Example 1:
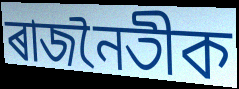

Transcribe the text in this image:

ৰাজনৈতীক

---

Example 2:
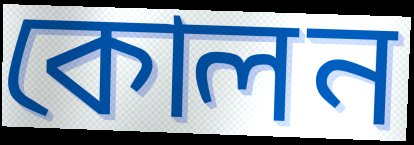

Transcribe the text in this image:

কোলন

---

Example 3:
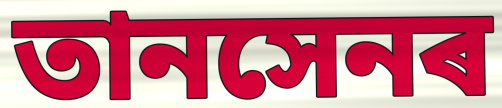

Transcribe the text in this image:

তানসেনৰ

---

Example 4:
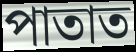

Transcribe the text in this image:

পাতাত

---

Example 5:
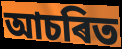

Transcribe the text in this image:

আচৰিত